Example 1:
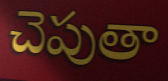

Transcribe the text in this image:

చెపుతా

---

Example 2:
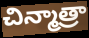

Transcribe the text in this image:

చిన్మాత్రా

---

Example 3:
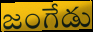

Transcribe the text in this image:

జంగేడు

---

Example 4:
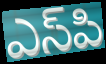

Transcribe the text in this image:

ఎస్‌పి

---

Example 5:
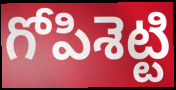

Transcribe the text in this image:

గోపిశెట్టి